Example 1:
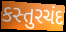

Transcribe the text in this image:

કસ્તુરચંદ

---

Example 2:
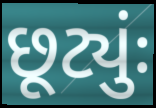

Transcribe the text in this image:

છૂટ્યુંઃ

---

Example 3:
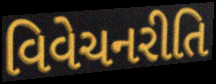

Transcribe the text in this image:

વિવેચનરીતિ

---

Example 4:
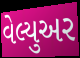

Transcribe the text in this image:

વેલ્યુઅર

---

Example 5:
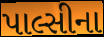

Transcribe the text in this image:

પાલ્સીના